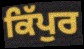
ਕਿੱਪੁਰ